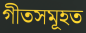
গীতসমূহত